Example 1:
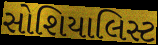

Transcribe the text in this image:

સોશિયાલિસ્ટ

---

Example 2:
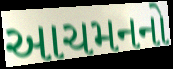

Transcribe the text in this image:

આચમનનો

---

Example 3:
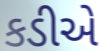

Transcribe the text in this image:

કડીએ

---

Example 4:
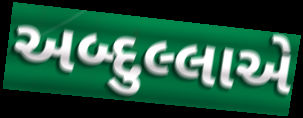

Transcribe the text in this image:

અબ્દુલ્લાએ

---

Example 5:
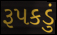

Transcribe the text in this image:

રૂપકડું